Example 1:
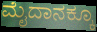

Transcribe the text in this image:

ಮೈದಾನಕ್ಕೂ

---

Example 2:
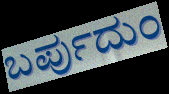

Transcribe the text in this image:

ಬರ್ಪುದುಂ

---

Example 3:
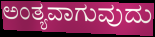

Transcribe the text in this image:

ಅಂತ್ಯವಾಗುವುದು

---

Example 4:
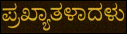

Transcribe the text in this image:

ಪ್ರಖ್ಯಾತಳಾದಳು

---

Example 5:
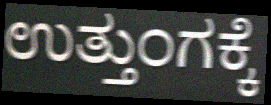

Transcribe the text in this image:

ಉತ್ತುಂಗಕ್ಕೆ